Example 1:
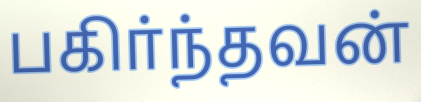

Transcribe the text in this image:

பகிர்ந்தவன்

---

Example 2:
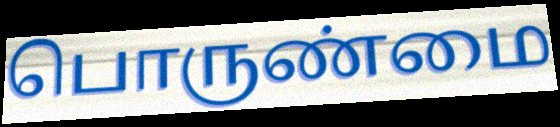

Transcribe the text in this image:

பொருண்மை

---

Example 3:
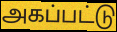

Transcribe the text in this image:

அகப்பட்டு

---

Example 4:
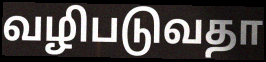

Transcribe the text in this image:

வழிபடுவதா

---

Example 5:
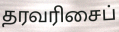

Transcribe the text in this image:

தரவரிசைப்